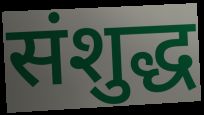
संशुद्ध